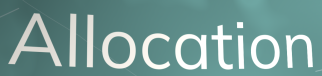
Allocation